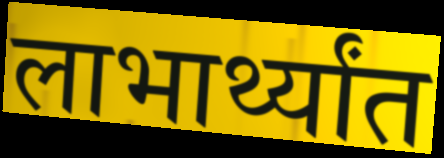
लाभार्थ्यांत